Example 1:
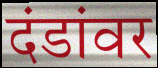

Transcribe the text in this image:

दंडांवर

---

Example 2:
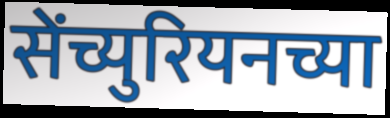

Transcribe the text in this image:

सेंच्युरियनच्या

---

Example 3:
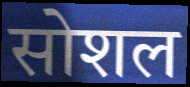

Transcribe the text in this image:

सोशल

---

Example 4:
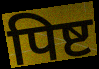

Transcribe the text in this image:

पिष्ट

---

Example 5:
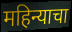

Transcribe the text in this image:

महिन्याचा